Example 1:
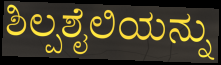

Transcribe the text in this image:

ಶಿಲ್ಪಶೈಲಿಯನ್ನು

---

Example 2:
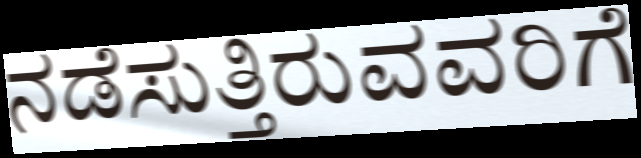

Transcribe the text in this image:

ನಡೆಸುತ್ತಿರುವವರಿಗೆ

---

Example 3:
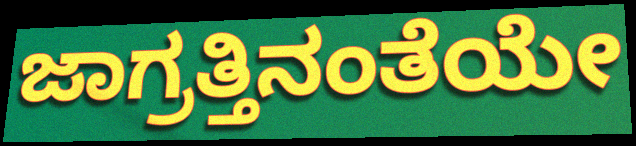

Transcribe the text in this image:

ಜಾಗ್ರತ್ತಿನಂತೆಯೇ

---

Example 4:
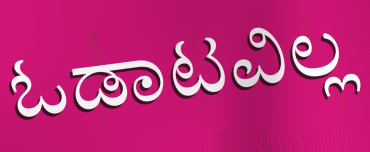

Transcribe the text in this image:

ಓಡಾಟವಿಲ್ಲ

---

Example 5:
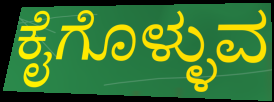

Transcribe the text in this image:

ಕೈಗೊಳ್ಳುವ